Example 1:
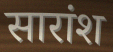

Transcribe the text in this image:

सारांश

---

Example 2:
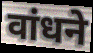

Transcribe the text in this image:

वांधने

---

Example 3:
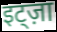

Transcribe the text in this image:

इट्ज़ा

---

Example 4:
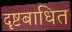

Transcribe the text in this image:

दृष्टबाधित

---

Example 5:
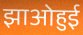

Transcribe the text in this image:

झाओहुई